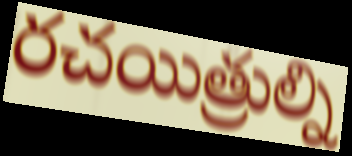
రచయిత్రుల్ని